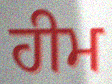
ਹੀਮ